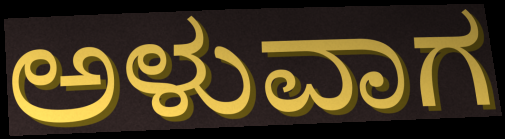
ಅಳುವಾಗ